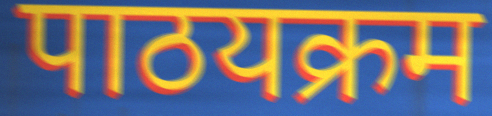
पाठयक्रम